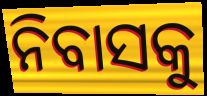
ନିବାସକୁ